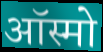
ऑस्मो